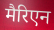
मैरिएन